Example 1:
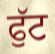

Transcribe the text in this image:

ਫੁੱਟ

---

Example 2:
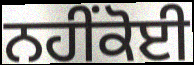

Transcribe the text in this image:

ਨਹੀਂਕੋਈ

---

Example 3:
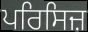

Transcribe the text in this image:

ਪਰਿਸਿਜ਼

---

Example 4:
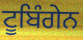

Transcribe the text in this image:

ਟੂਬਿੰਗੇਨ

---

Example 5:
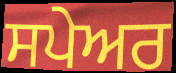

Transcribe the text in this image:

ਸਪੇਅਰ